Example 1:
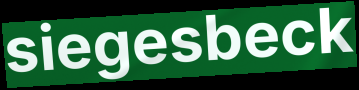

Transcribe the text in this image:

siegesbeck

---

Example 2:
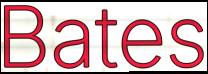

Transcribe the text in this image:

Bates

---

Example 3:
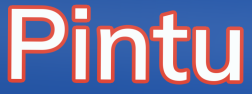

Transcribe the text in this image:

Pintu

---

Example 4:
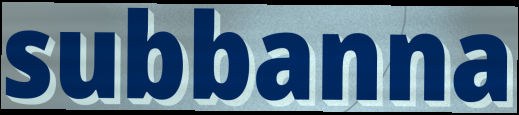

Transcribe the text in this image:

subbanna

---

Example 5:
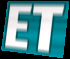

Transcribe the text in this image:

ET